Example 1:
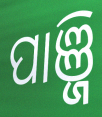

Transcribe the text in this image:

ପାଞ୍ଜି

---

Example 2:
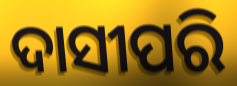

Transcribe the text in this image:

ଦାସୀପରି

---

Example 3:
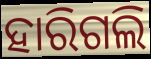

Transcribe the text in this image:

ହାରିଗଲି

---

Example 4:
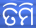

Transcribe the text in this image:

ତିମି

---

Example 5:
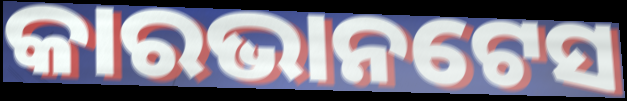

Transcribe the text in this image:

କାରଭାନଟେସ